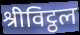
श्रीविट्ठल